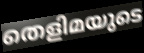
തെളിമയുടെ